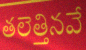
తలెత్తినవే